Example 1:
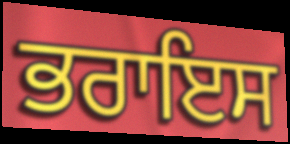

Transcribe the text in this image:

ਭਰਾਇਸ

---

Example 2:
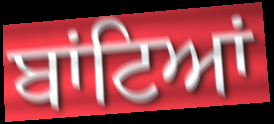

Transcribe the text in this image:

ਬਾਂਟਿਆਂ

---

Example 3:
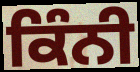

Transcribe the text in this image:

ਕਿੰਨੀ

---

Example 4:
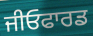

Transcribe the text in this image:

ਜੀਓਫਾਰਡ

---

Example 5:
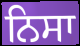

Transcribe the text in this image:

ਨਿਸਾ